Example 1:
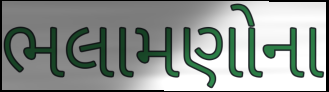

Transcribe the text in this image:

ભલામણોના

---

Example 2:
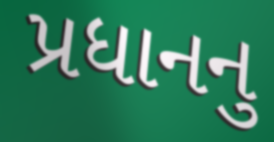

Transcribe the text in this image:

પ્રધાનનુ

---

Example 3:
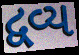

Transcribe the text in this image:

દ્વવ્ય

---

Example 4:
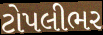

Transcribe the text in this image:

ટોપલીભર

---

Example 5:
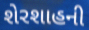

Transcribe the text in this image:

શેરશાહની